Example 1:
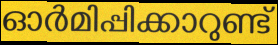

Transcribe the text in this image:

ഓർമിപ്പിക്കാറുണ്ട്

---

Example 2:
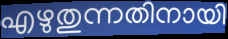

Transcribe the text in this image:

എഴുതുന്നതിനായി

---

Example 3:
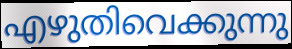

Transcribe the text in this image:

എഴുതിവെക്കുന്നു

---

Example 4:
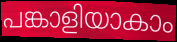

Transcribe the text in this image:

പങ്കാളിയാകാം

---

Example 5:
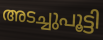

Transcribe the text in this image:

അടച്ചുപൂട്ടി